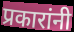
प्रकारांनी